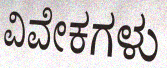
ವಿವೇಕಗಳು